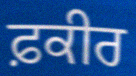
ਫ਼ਕੀਰ